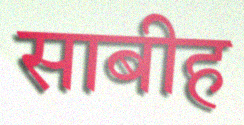
साबीह